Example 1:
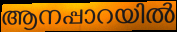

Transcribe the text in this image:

ആനപ്പാറയിൽ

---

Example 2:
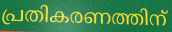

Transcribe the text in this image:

പ്രതികരണത്തിന്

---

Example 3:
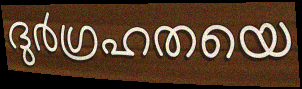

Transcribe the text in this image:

ദുർഗ്രഹതയെ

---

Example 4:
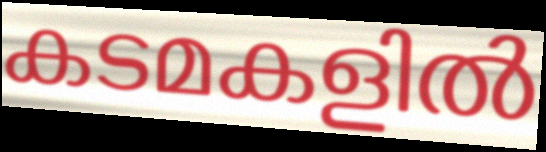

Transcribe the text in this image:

കടമകളിൽ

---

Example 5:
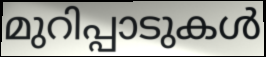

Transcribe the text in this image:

മുറിപ്പാടുകൾ